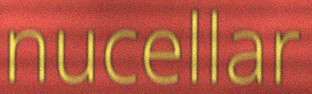
nucellar